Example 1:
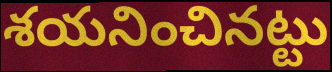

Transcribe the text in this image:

శయనించినట్టు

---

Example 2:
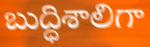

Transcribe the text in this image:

బుద్ధిశాలిగా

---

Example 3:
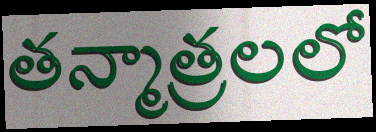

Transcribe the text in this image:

తన్మాత్రలలో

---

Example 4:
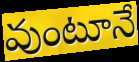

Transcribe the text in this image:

వుంటూనే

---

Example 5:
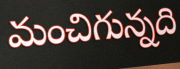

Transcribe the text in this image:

మంచిగున్నది